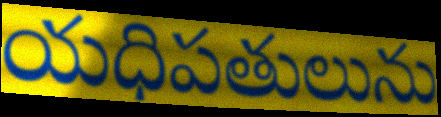
యధిపతులును